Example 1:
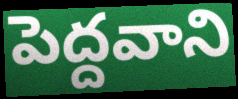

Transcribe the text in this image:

పెద్దవాని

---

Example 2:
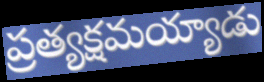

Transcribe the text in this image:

ప్రత్యక్షమయ్యాడు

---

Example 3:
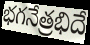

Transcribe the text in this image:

భగనేత్రభిదే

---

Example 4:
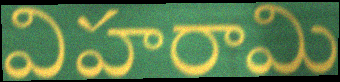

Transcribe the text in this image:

విహరామి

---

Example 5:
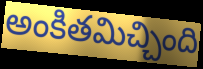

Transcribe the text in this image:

అంకితమిచ్చింది